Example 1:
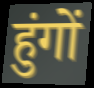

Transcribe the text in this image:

हुंगों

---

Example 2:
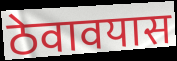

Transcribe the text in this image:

ठेवावयास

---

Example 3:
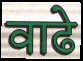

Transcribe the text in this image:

वाढे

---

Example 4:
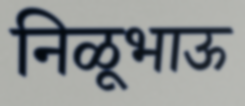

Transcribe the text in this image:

निळूभाऊ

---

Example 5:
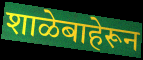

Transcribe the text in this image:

शाळेबाहेरून